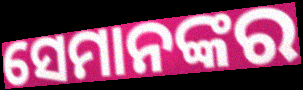
ସେମାନଙ୍କର